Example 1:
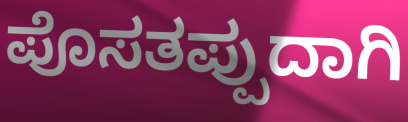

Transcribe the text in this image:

ಪೊಸತಪ್ಪುದಾಗಿ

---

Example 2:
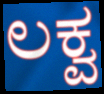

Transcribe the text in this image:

ಲಕ್ವ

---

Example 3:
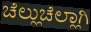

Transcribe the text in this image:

ಚೆಲ್ಲುಚೆಲ್ಲಾಗಿ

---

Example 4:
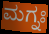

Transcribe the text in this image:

ಮಗ್ನಃ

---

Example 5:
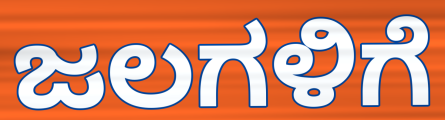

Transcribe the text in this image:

ಜಲಗಳಿಗೆ